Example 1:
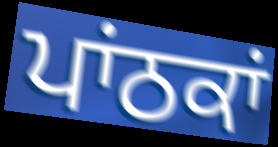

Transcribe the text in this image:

ਪਾਂਠਕਾਂ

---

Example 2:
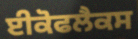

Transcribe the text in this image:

ਈਕੋਫਲੈਕਸ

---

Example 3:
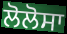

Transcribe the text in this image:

ਲੋਲੋਸਾ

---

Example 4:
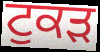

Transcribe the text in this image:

ਟੁਕੜ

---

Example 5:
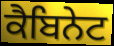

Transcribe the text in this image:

ਕੈਬਿਨੇਟ